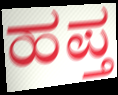
ಹಪ್ತ